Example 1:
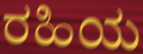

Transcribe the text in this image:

ರಹಿಯ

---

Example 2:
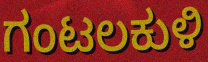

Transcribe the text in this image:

ಗಂಟಲಕುಳಿ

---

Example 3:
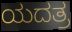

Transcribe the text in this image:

ಯದತ್ರ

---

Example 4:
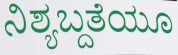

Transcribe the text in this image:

ನಿಶ್ಯಬ್ದತೆಯೂ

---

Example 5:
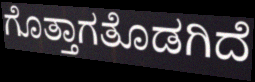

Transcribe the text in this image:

ಗೊತ್ತಾಗತೊಡಗಿದೆ